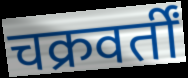
चक्रवर्तीं